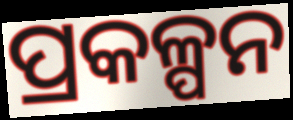
ପ୍ରକଳ୍ପନ